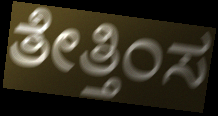
ತೇತ್ತಿಂಸ